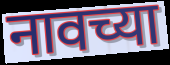
नावच्या